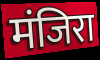
मंजिरा